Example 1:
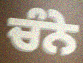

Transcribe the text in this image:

ਚੰਨੇ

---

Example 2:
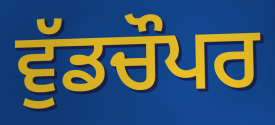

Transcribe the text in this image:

ਵੁੱਡਚੌਪਰ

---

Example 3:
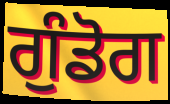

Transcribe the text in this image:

ਗੁੰਡੋਗ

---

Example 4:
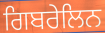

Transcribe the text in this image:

ਗਿਬਰੇਲਿਨ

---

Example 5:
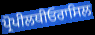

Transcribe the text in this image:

ਪ੍ਰੋਪੀਲਥੀਓਰਾਸਿਲ